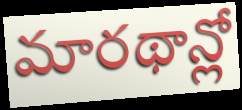
మారథాన్లో